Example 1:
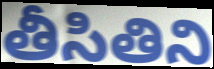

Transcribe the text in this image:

తీసితిని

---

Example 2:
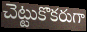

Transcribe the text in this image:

చెట్టుకొకరుగా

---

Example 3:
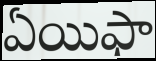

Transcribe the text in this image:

ఏయిఫా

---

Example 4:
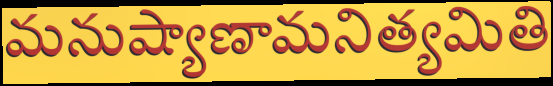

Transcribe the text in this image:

మనుష్యాణామనిత్యమితి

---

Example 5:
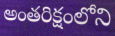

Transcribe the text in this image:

అంతరిక్షంలోని